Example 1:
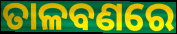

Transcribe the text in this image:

ତାଳବଣରେ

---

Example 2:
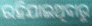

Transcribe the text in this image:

ରହିଯାଇଥିବାରୁ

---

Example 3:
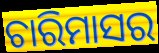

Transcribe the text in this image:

ଚାରିମାସର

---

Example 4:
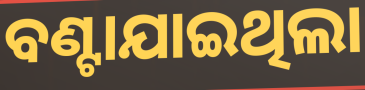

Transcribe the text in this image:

ବଣ୍ଟାଯାଇଥିଲା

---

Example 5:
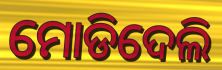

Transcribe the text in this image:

ମୋଡିଦେଲି